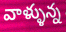
వాళ్ళున్న